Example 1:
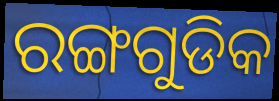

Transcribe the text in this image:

ରଙ୍ଗଗୁଡିକ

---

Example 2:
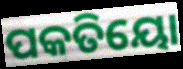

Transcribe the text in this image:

ପକତିୟୋ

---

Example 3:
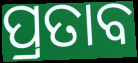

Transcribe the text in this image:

ପ୍ରତାବ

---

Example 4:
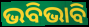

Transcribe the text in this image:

ଭବିଭାବି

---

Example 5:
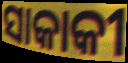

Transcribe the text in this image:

ସାକାକୀ